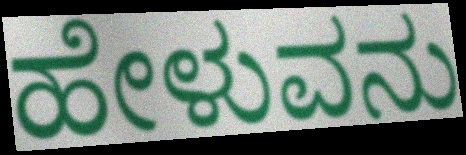
ಹೇಳುವನು